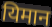
यिमान